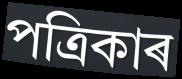
পত্ৰিকাৰ